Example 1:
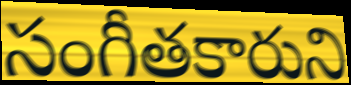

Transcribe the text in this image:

సంగీతకారుని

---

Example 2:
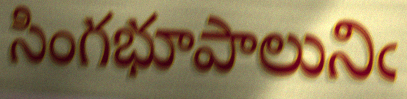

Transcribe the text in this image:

సింగభూపాలునిఁ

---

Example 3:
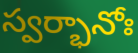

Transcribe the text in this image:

స్వర్భానోః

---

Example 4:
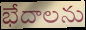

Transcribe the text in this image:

భేదాలను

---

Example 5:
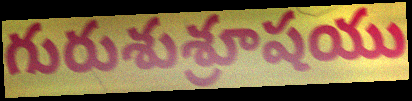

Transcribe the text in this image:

గురుశుశ్రూషయు